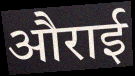
औराई